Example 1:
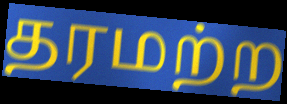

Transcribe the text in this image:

தரமற்ற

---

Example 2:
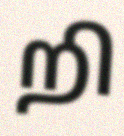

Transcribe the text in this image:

றி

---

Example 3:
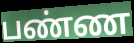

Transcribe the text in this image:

பண்ண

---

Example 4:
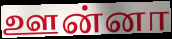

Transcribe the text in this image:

ஊன்னா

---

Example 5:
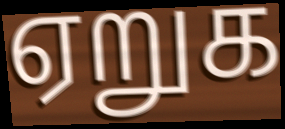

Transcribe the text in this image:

ஏறுக